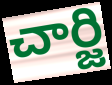
చార్జి